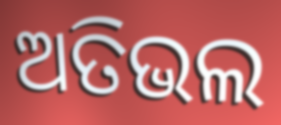
ଅତିଭଲ